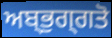
ਅਬ੍ਭੁਗ੍ਗਤੋ